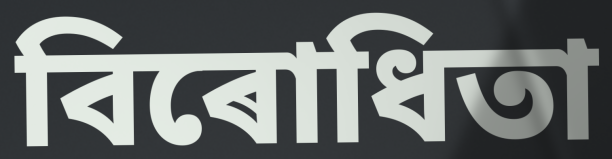
বিৰোধিতা